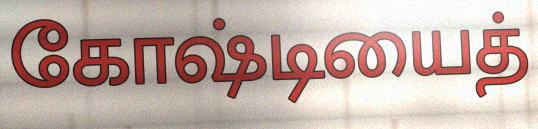
கோஷ்டியைத்